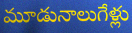
మూడునాలుగేళ్లు